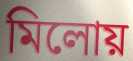
মিলোয়